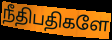
நீதிபதிகளே